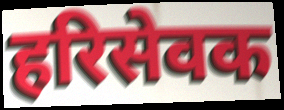
हरिसेवक